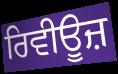
ਰਿਵੀਊਜ਼